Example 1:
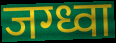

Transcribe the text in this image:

जग्ध्वा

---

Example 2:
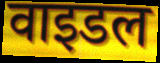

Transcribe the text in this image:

वाइडल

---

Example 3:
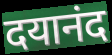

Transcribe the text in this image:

दयानंद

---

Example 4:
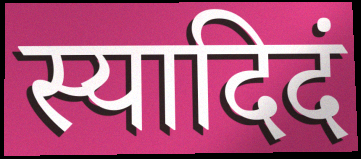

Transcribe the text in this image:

स्यादिदं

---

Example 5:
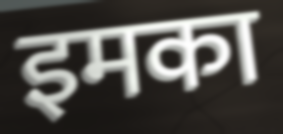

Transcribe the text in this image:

इमका